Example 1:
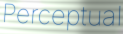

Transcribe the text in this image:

Perceptual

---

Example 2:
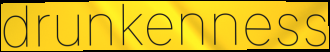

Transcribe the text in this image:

drunkenness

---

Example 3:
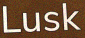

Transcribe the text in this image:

Lusk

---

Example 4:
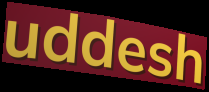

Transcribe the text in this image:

uddesh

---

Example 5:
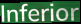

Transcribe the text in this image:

Inferior